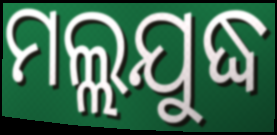
ମଲ୍ଲଯୁଦ୍ଧ